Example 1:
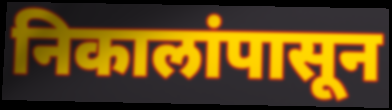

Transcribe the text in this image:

निकालांपासून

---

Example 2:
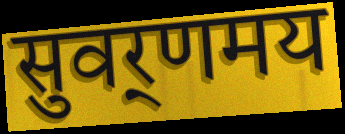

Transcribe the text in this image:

सुवर्णमय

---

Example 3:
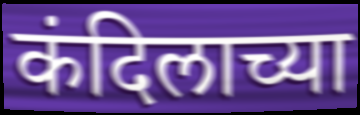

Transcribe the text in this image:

कंदिलाच्या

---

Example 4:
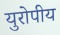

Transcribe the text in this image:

युरोपीय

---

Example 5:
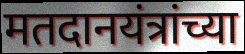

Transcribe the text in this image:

मतदानयंत्रांच्या